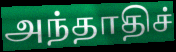
அந்தாதிச்